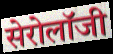
सेरोलॉजी